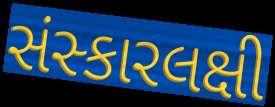
સંસ્કારલક્ષી